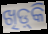
ଖିଡ଼୍‌କି